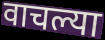
वाचल्या